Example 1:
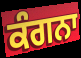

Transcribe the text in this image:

ਕੰਗਨਾ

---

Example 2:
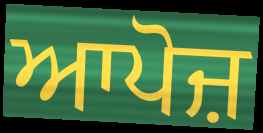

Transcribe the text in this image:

ਆਪੋਜ਼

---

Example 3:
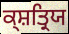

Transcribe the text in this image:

ਕ੍ਸ਼ਤ੍ਰਿਯ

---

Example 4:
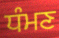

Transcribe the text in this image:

ਧੰਮਣ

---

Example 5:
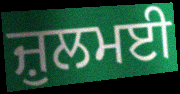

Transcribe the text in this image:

ਜ਼ੁਲਮਈ